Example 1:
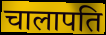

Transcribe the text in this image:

चालापति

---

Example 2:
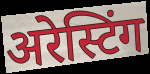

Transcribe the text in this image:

अरेस्टिंग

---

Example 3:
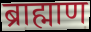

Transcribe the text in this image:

ब्राह्माण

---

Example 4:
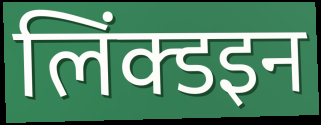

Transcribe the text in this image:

लिंक्‍डइन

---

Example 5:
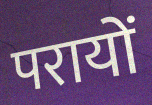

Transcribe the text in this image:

परायों